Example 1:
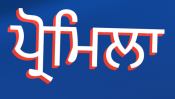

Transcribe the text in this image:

ਪ੍ਰੋਮਿਲਾ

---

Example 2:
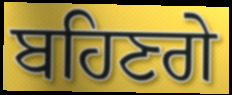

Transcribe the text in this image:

ਬਹਿਣਗੇ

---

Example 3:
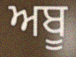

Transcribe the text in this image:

ਅਬੂ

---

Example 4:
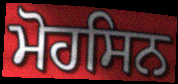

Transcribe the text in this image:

ਮੋਹਸਿਨ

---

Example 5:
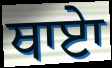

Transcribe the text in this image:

ਥਾਏਾ